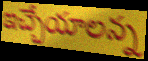
ఇచ్చేయాలన్న